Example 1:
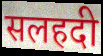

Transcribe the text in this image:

सलहदी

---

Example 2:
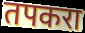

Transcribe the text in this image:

तपकरा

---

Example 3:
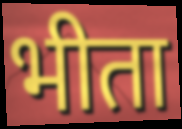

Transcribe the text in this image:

भीता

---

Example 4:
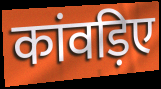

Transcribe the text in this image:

कांवड़िए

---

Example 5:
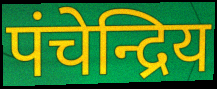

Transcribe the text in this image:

पंचेन्द्रिय